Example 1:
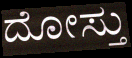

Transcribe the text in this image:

ದೋಸ್ತು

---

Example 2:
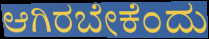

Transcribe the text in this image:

ಆಗಿರಬೇಕೆಂದು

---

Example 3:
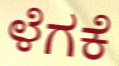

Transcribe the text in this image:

ಳೆಗಕೆ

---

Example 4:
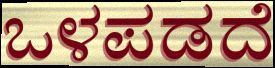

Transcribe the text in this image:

ಒಳಪಡದೆ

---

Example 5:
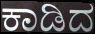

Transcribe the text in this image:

ಕಾಡಿದ